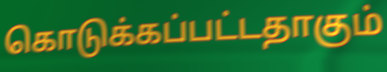
கொடுக்கப்பட்டதாகும்